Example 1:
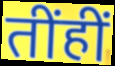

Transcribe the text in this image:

तींहीं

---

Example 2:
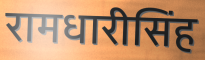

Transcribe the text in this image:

रामधारीसिंह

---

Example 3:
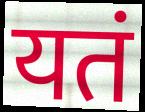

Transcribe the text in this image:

यतं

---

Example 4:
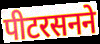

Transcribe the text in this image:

पीटरसनने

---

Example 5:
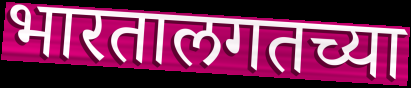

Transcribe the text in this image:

भारतालगतच्या